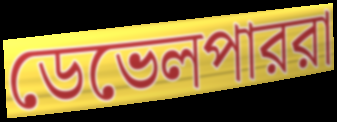
ডেভেলপাররা